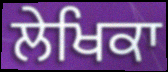
ਲੇਖਿਕਾ